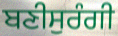
ਬਣੀਸੁਰੰਗੀ